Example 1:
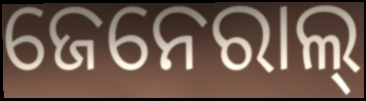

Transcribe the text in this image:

ଜେନେରାଲ୍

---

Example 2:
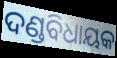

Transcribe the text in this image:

ଦଣ୍ଡବିଧାୟକ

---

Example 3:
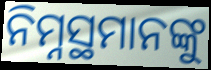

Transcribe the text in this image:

ନିମ୍ନସ୍ଥମାନଙ୍କୁ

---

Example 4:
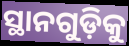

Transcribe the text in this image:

ସ୍ଥାନଗୁଡ଼ିକୁ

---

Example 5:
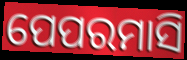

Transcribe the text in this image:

ପେପରମାସି